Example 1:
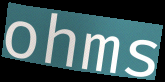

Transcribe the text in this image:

ohms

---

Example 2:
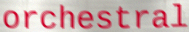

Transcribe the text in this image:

orchestral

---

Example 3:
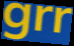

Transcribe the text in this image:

grr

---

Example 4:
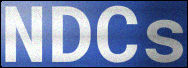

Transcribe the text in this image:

NDCs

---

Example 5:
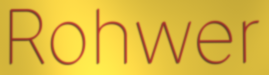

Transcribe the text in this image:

Rohwer